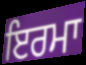
ਇਰਮਾ